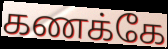
கணக்கே